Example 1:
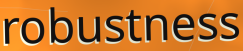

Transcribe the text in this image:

robustness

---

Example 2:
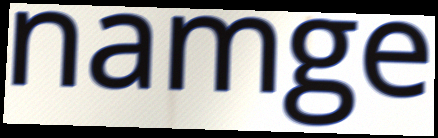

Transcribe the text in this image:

namge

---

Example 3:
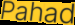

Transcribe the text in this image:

Pahad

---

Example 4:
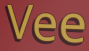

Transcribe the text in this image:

Vee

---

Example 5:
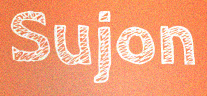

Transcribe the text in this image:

Sujon